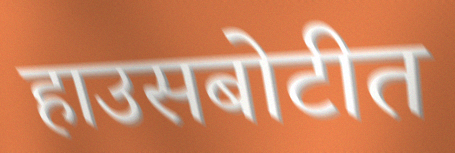
हाउसबोटीत